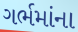
ગર્ભમાંના